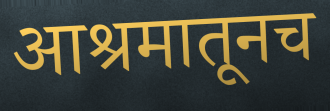
आश्रमातूनच